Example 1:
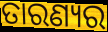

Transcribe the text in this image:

ତାରଣ୍ୟର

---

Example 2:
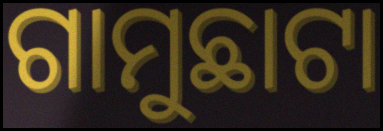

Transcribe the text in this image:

ଗାମୁଛାଟା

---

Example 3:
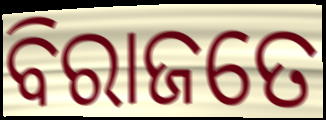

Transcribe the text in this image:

ବିରାଜତେ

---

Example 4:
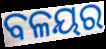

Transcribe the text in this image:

ବଳୟର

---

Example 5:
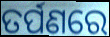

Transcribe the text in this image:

ତର୍ପଣରେ